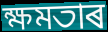
ক্ষমতাৰ